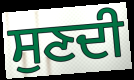
ਸੁਣਦੀ